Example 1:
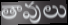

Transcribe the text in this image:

తావులు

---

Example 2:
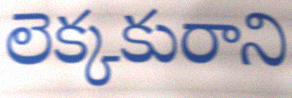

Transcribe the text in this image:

లెక్కకురాని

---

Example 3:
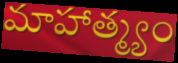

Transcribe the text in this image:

మాహాత్మ్యం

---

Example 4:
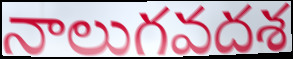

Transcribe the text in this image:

నాలుగవదశ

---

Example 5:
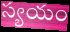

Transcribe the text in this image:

స్యయం